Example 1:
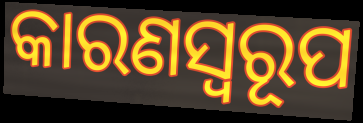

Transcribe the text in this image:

କାରଣସ୍ୱରୂପ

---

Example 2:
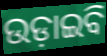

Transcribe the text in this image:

ଉଡ଼ାଇବି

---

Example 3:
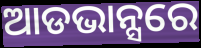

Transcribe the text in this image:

ଆଡଭାନ୍ସରେ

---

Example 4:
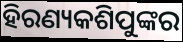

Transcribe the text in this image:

ହିରଣ୍ୟକଶିପୁଙ୍କର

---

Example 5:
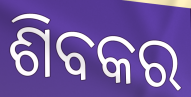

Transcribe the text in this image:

ଶିବକର